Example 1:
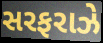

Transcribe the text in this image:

સરફરાઝે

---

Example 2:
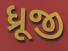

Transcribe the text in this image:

ધ્રૂજી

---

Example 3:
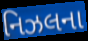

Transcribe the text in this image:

નિઝલના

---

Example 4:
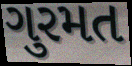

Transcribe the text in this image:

ગુરમત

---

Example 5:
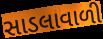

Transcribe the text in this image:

સાડલાવાળી